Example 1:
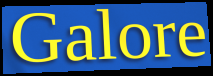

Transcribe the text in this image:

Galore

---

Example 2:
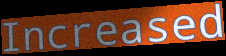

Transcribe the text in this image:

Increased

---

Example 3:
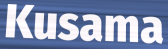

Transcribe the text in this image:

Kusama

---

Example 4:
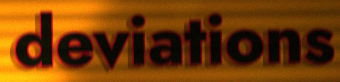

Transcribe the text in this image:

deviations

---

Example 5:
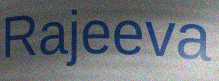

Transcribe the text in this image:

Rajeeva